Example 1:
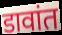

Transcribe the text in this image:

डावांत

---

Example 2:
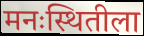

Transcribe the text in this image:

मनःस्थितीला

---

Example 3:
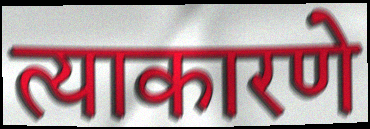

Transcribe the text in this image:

त्याकारणे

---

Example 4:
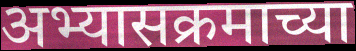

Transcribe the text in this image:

अभ्यासक्रमाच्या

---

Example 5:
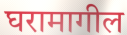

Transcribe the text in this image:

घरामागील